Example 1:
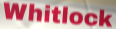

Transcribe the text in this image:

Whitlock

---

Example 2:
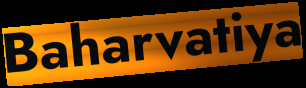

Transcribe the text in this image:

Baharvatiya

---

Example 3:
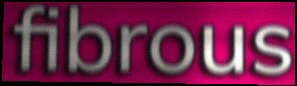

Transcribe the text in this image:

fibrous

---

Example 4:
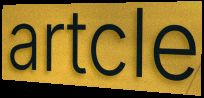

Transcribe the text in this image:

artcle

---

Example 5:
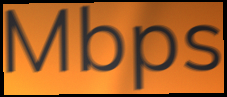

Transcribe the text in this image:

Mbps